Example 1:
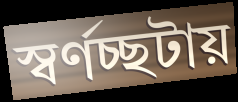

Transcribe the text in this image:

স্বর্ণচ্ছটায়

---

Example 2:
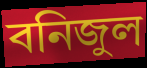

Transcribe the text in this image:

বনিজুল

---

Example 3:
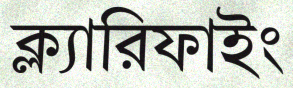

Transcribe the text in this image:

ক্ল্যারিফাইং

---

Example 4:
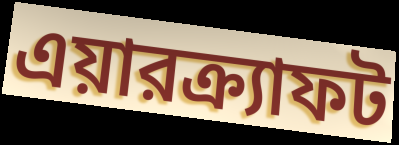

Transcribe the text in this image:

এয়ারক্র্যাফট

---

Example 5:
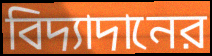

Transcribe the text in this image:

বিদ্যাদানের